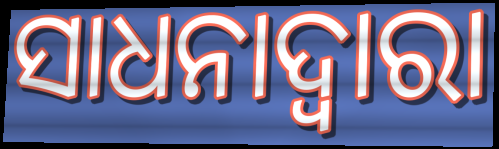
ସାଧନାଦ୍ଵାରା